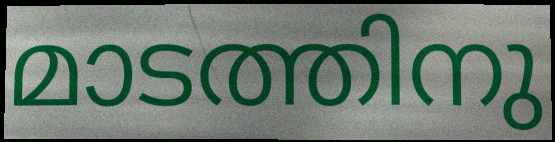
മാടത്തിനു